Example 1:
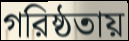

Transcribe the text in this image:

গরিষ্ঠতায়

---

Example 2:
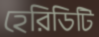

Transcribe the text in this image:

হেরিডিটি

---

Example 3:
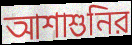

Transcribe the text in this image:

আশাশুনির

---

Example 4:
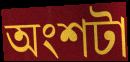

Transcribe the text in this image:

অংশটা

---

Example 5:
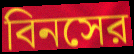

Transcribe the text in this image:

বিনসের